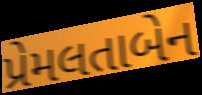
પ્રેમલતાબેન